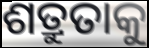
ଶତ୍ରୁତାକୁ